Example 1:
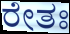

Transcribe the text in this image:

ರೇತಃ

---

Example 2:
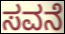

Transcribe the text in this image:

ಸವನೆ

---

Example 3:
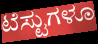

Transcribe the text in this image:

ಟೆಸ್ಟುಗಳೂ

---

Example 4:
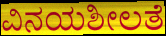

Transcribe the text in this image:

ವಿನಯಶೀಲತೆ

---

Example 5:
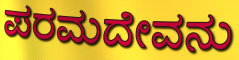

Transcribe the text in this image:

ಪರಮದೇವನು